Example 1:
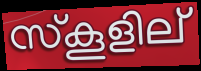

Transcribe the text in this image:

സ്കൂളില്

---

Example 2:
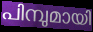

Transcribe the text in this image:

പിമ്പുമായി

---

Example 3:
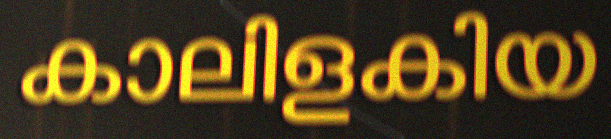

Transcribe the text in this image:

കാലിളകിയ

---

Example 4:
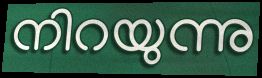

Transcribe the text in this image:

നിറയുന്നു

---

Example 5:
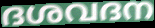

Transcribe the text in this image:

ദശവദന